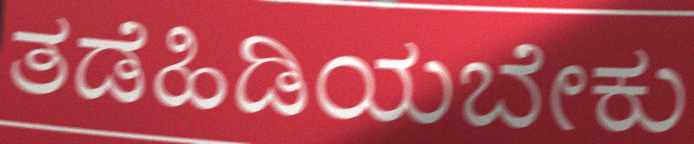
ತಡೆಹಿಡಿಯಬೇಕು